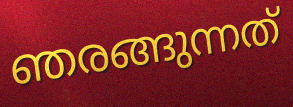
ഞരങ്ങുന്നത്